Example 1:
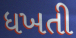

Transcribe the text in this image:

ધખતી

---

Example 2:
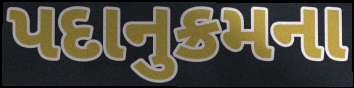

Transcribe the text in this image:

પદાનુક્રમના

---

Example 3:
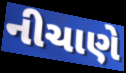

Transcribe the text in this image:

નીચાણે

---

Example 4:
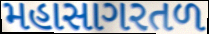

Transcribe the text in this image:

મહાસાગરતળ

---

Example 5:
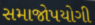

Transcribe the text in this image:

સમાજોપયોગી